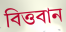
বিত্তবান